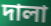
দালা